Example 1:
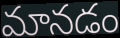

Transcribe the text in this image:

మానడం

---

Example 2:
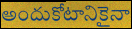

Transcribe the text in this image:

అందుకోటానికైనా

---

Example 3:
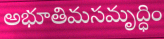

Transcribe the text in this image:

అభూతిమసమృద్ధిం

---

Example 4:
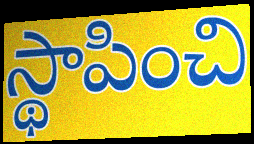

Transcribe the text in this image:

స్థాపించి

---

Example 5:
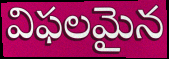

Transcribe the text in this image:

విఫలమైన